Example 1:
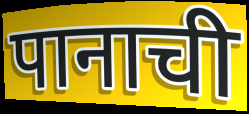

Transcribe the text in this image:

पानाची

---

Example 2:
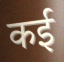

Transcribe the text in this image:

कई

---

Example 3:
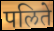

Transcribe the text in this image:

पलिते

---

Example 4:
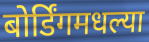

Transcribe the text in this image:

बोर्डिंगमधल्या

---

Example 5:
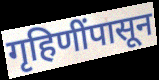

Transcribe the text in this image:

गृहिणींपासून